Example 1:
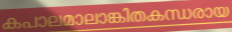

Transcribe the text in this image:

കപാലമാലാങ്കിതകന്ധരായ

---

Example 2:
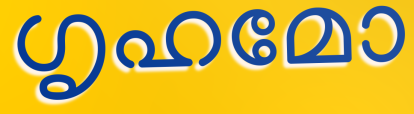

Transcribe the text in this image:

ഗൃഹമോ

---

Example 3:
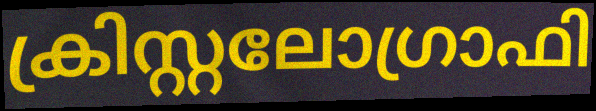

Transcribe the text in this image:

ക്രിസ്റ്റലോഗ്രാഫി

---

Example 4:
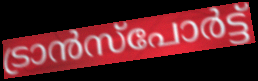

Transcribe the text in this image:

ട്രാൻസ്പോർട്ട്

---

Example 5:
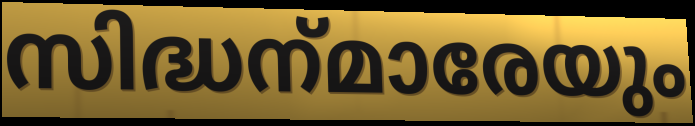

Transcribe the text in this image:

സിദ്ധന്‌മാരേയും